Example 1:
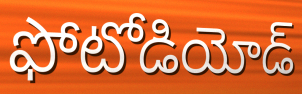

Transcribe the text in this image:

ఫోటోడియోడ్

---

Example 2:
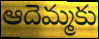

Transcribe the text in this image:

ఆదెమ్మకు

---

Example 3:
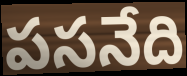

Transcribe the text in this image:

పసనేది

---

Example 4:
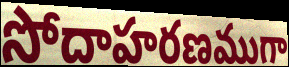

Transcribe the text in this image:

సోదాహరణముగా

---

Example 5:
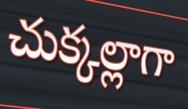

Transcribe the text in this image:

చుక్కల్లాగా